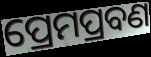
ପ୍ରେମପ୍ରବଣ